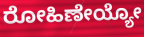
ರೋಹಿಣೇಯ್ಯೋ